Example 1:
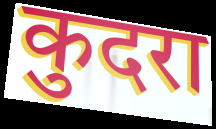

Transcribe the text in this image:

कुदरा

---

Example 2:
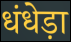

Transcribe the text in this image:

धंधेड़ा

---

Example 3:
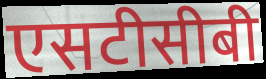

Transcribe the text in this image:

एसटीसीबी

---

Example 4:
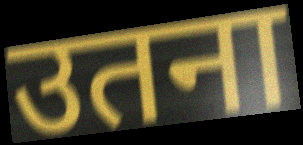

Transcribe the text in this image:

उतना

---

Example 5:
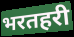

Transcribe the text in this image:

भरतहरी